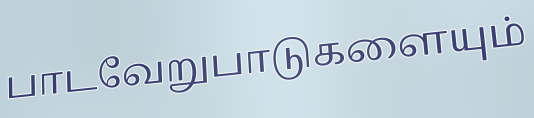
பாடவேறுபாடுகளையும்